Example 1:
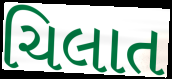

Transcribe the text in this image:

ચિલાત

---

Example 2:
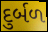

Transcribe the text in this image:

દુર્બળ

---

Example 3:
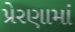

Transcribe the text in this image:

પ્રેરણામાં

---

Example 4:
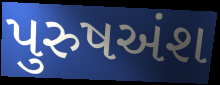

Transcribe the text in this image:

પુરુષઅંશ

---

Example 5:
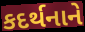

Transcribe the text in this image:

કદર્થનાને